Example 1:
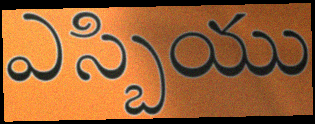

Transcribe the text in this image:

ఎస్బియు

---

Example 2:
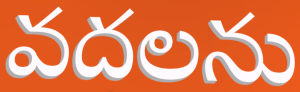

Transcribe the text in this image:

వదలను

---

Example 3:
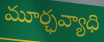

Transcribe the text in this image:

మూర్ఛవ్యాధి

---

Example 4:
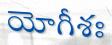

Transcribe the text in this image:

యోగీశః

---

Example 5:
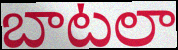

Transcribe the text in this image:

బాటలా